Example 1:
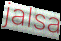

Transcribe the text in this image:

jalsa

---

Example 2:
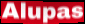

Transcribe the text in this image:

Alupas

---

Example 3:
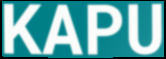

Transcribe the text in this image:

KAPU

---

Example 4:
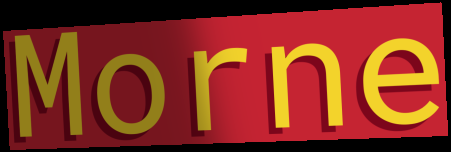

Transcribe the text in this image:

Morne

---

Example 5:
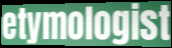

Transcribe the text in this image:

etymologist